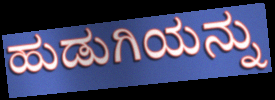
ಹುಡುಗಿಯನ್ನು